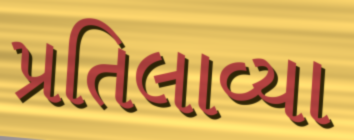
પ્રતિલાવ્યા